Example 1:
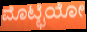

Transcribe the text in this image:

ಮೊಟ್ಟೆಯೋ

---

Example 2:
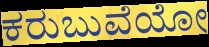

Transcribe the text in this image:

ಕರುಬುವೆಯೋ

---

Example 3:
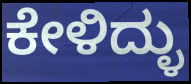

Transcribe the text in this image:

ಕೇಳಿದ್ಳು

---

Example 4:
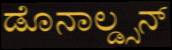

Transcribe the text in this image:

ಡೊನಾಲ್ಡ್ಸನ್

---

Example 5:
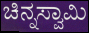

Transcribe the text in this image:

ಚಿನ್ನಸ್ವಾಮಿ